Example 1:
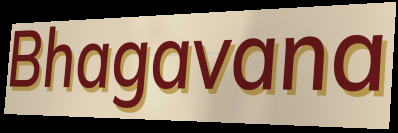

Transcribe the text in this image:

Bhagavana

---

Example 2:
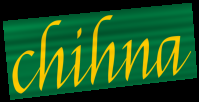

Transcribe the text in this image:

chihna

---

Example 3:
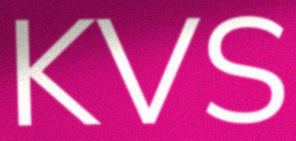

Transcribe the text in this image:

KVS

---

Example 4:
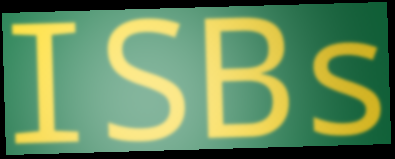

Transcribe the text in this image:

ISBs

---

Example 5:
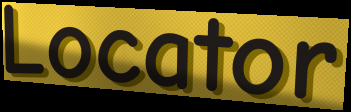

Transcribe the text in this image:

Locator